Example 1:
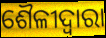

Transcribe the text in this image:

ଶୈଳୀଦ୍ୱାରା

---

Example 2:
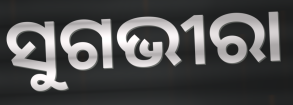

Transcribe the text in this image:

ସୁଗଭୀରା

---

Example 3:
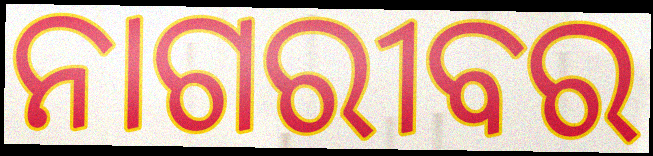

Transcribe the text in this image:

ନାଗରୀବର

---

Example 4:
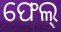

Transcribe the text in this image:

ଫେଲ୍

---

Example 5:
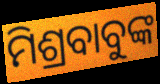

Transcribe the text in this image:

ମିଶ୍ରବାବୁଙ୍କ